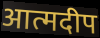
आत्मदीप